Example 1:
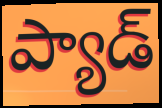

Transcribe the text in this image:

ప్యాడ్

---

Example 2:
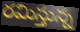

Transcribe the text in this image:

రమిస్తున్న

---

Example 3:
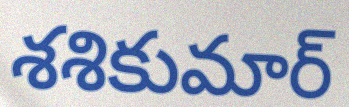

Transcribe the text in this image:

శశికుమార్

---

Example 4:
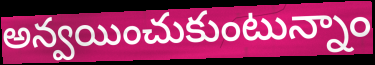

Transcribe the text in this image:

అన్వయించుకుంటున్నాం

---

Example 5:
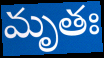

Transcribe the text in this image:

మృతః